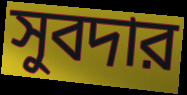
সুবদার